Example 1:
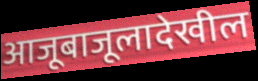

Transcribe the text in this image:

आजूबाजूलादेखील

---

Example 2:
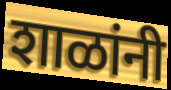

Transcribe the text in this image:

शाळांनी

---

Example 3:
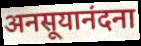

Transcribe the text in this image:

अनसूयानंदना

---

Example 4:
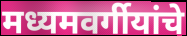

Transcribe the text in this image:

मध्यमवर्गीयांचे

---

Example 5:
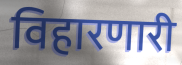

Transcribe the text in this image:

विहारणारी